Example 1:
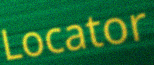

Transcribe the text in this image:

Locator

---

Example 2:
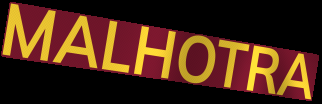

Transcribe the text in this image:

MALHOTRA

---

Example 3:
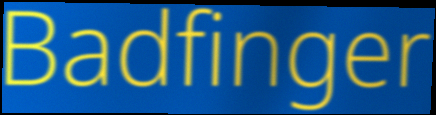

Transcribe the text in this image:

Badfinger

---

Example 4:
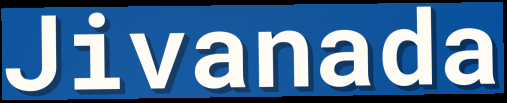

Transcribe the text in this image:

Jivanada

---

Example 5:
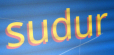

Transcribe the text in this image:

sudur